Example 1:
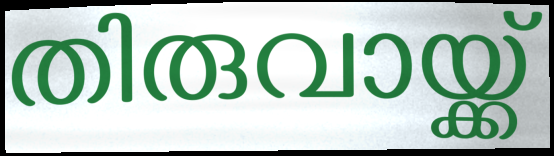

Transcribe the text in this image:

തിരുവായ്ക്ക്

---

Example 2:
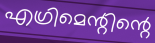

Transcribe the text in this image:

എഗ്രിമെന്റിന്റെ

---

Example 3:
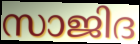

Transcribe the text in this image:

സാജിദ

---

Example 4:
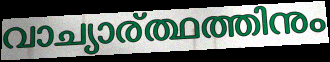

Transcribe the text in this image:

വാച്യാര്ത്ഥത്തിനും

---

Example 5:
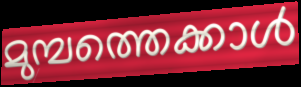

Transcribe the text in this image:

മുമ്പത്തെക്കാൾ